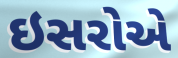
ઇસરોએ